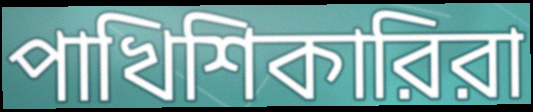
পাখিশিকারিরা